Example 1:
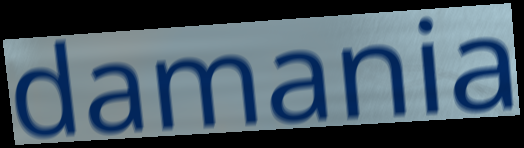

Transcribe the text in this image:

damania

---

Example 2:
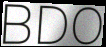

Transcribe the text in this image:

BDO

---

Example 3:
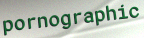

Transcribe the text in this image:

pornographic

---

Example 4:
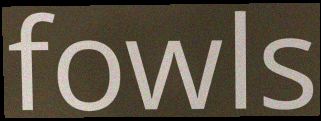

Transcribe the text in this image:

fowls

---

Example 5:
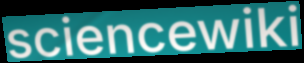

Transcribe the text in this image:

sciencewiki